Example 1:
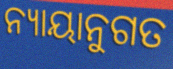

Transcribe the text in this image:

ନ୍ୟାୟାନୁଗତ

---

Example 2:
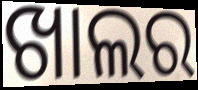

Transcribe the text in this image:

ଖାଲର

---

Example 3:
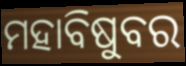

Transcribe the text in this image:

ମହାବିଷୁବର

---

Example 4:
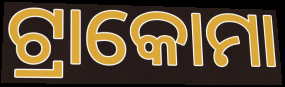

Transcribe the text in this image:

ଟ୍ରାକୋମା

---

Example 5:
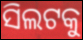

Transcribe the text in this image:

ସିଲଟକୁ